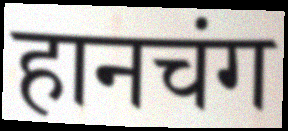
हानचंग